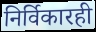
निर्विकारही